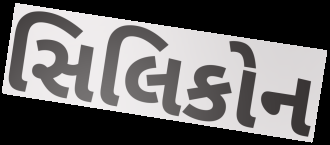
સિલિકોન